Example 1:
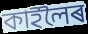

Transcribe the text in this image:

কাইলৈৰ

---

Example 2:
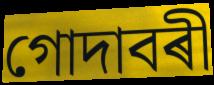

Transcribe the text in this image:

গোদাবৰী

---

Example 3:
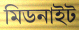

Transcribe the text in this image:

মিডনাইট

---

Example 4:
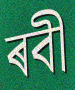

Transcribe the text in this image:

ৰবী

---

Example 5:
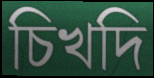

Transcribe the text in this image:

চিখদি